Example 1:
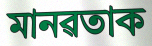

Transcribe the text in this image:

মানৱতাক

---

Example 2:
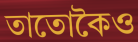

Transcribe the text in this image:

তাতোকৈও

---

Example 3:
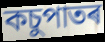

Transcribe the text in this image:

কচুপাতৰ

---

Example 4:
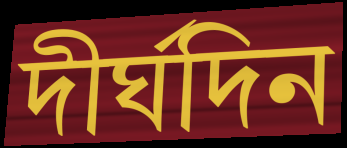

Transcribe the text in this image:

দীৰ্ঘদিন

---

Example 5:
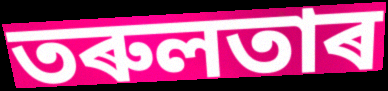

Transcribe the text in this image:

তৰুলতাৰ